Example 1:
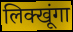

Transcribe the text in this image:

लिक्खूंगा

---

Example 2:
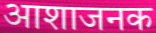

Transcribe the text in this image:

आशाजनक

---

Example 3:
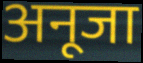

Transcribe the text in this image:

अनूजा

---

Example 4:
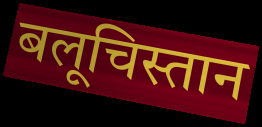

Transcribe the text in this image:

बलूचिस्‍तान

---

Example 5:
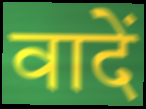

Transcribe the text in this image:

वादें